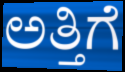
ಅತ್ತಿಗೆ